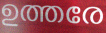
ഉത്തരേ